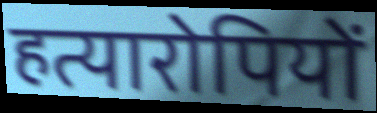
हत्यारोपियों